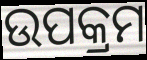
ଉପକ୍ରମ